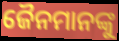
ଜୈନମାନଙ୍କୁ